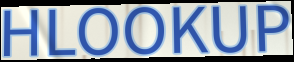
HLOOKUP